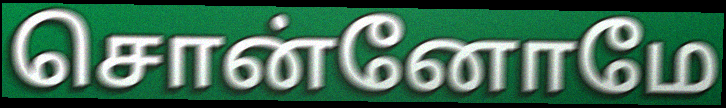
சொன்னோமே